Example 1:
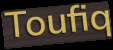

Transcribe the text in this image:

Toufiq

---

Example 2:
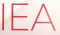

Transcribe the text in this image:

IEA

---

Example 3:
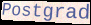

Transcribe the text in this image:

Postgrad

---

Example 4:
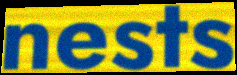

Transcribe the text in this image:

nests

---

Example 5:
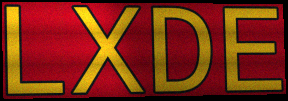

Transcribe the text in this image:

LXDE